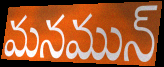
మనమున్